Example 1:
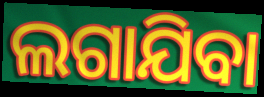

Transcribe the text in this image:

ଲଗାଯିବା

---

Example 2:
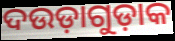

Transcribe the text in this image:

ଦଉଡ଼ାଗୁଡ଼ାକ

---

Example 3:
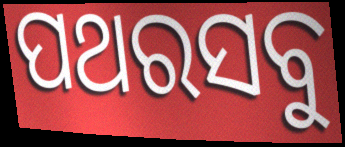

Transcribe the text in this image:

ପଥରସବୁ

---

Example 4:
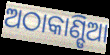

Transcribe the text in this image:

ଅଠାକାଣ୍ଡିଆ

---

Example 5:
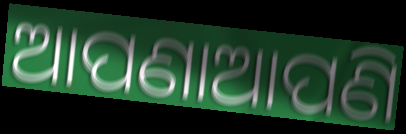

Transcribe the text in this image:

ଆପଣାଆପଣି